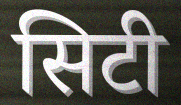
सिटी